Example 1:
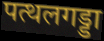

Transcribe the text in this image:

पत्थलगड्डा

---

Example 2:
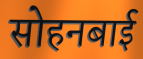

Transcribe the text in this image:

सोहनबाई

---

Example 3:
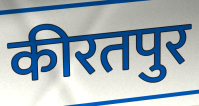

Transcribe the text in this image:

कीरतपुर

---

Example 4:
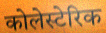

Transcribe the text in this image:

कोलेस्टेरिक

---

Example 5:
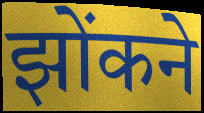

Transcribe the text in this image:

झोंकने